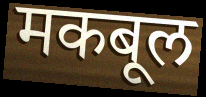
मकबूल